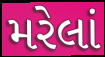
મરેલાં